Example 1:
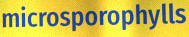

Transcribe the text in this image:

microsporophylls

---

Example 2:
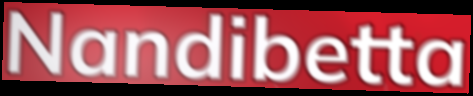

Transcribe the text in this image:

Nandibetta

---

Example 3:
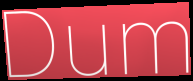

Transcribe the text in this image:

Dum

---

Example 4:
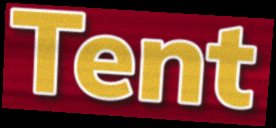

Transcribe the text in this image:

Tent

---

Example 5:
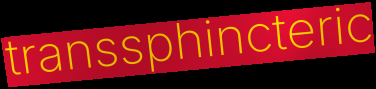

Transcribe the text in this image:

transsphincteric